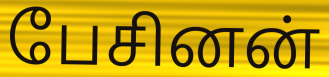
பேசினன்